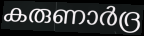
കരുണാർദ്ര